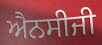
ਐਨਸੀਜੀ